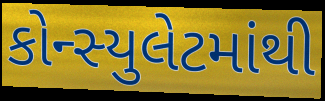
કોન્સ્યુલેટમાંથી